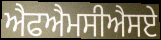
ਐਫਐਮਸੀਐਸਏ